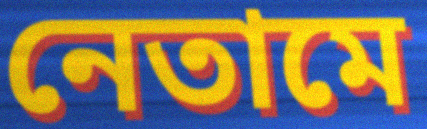
নেতামে